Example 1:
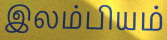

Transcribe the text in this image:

இலம்பியம்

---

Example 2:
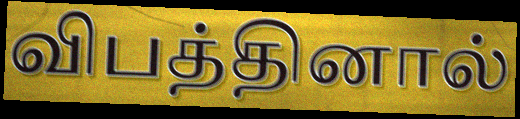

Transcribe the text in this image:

விபத்தினால்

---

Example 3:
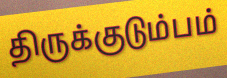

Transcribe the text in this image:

திருக்குடும்பம்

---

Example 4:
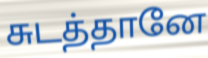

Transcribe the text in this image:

சுடத்தானே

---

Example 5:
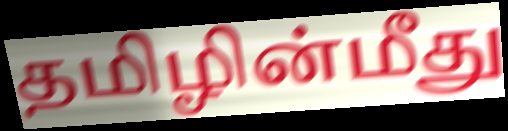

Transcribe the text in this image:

தமிழின்மீது